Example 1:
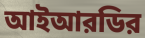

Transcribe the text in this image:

আইআরডির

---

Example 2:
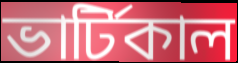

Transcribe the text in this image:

ভার্টিকাল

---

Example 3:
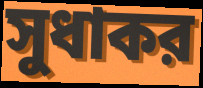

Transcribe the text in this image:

সুধাকর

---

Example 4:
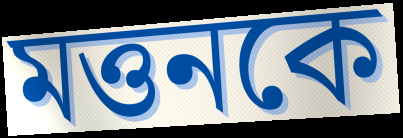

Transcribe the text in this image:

মত্তনকে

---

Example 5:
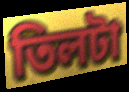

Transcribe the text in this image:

তিলটা